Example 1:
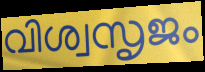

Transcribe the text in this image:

വിശ്വസൃജം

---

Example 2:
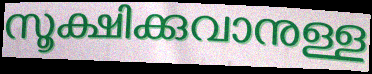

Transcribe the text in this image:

സൂക്ഷിക്കുവാനുള്ള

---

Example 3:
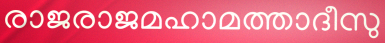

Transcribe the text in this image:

രാജരാജമഹാമത്താദീസു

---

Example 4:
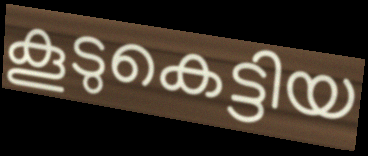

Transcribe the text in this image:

കൂടുകെട്ടിയ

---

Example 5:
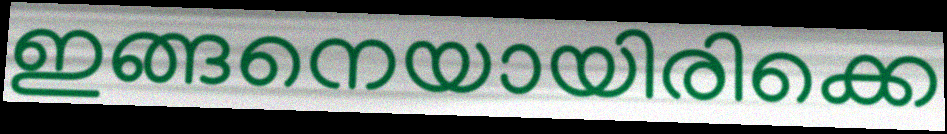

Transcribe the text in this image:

ഇങ്ങനെയായിരിക്കെ